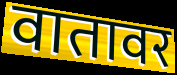
वातावर